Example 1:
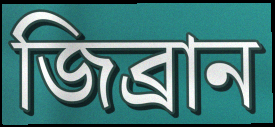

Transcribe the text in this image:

জিব্রান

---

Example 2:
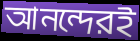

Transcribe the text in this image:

আনন্দেরই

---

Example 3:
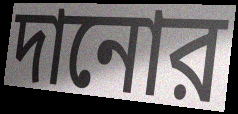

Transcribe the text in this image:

দানোর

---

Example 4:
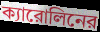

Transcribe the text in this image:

ক্যারোলিনের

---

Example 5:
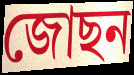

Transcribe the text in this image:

জোছন